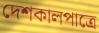
দেশকালপাত্রে